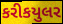
કરીકયુલર